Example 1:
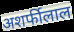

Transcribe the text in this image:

अशर्फीलाल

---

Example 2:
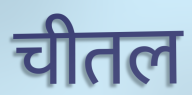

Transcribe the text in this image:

चीतल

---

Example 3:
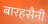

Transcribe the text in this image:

बारहसैनी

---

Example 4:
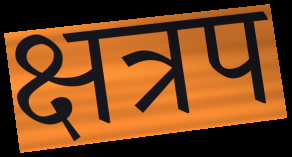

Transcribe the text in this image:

क्षत्रप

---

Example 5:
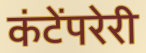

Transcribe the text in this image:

कंटेंपरेरी